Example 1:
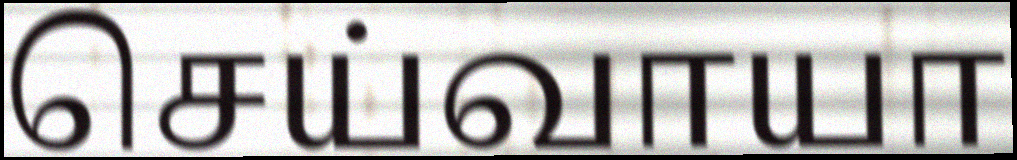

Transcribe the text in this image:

செய்வாயா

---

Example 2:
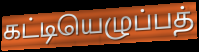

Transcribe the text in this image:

கட்டியெழுப்பத்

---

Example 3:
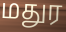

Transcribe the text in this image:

மதுர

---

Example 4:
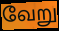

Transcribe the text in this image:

வேறு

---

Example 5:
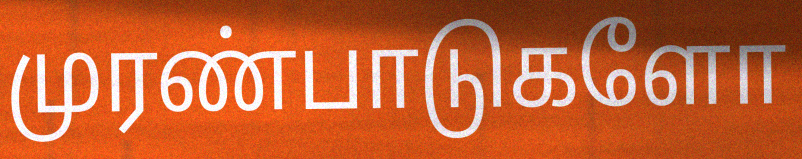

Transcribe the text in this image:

முரண்பாடுகளோ